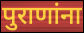
पुराणांना